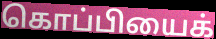
கொப்பியைக்